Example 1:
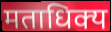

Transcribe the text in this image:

मताधिक्‍य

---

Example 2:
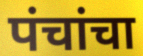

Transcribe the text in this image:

पंचांचा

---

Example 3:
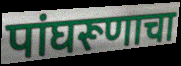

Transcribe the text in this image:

पांघरूणाचा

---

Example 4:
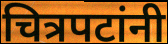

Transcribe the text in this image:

चित्रपटांनी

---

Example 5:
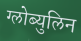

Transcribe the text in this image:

ग्लोब्युलिन